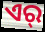
ଏର୍